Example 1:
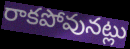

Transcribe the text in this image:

రాకపోవునట్లు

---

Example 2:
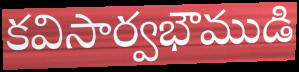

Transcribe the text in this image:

కవిసార్వభౌముడి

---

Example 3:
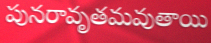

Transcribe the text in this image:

పునరావృతమవుతాయి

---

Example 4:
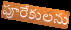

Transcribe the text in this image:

పూరేకులను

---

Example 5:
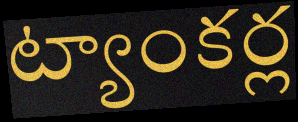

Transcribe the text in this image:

ట్యాంకర్ల